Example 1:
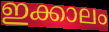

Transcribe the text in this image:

ഇക്കാലം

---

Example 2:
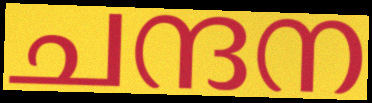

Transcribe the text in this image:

ചന്ദന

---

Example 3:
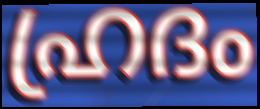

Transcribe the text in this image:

ഹ്രദം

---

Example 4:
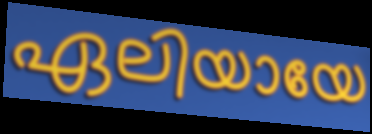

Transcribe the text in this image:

ഏലിയായേ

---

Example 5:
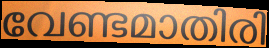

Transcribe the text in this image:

വേണ്ടമാതിരി